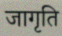
जागृति